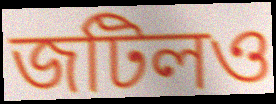
জটিলও